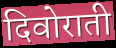
दिवोराती